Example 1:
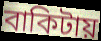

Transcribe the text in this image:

বাকিটায়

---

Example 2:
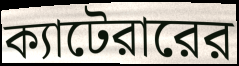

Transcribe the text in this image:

ক্যাটেরারের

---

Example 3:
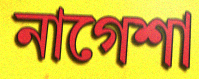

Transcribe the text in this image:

নাগেশা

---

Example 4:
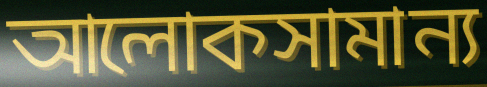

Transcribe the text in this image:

আলোকসামান্য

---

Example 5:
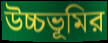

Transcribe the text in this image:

উচ্চভূমির